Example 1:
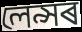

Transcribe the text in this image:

লেন্সৰ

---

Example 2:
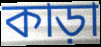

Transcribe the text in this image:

কাড়া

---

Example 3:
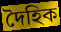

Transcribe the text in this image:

দৈহিক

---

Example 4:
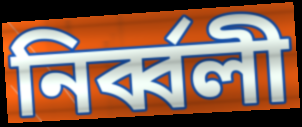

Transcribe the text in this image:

নিৰ্ব্বলী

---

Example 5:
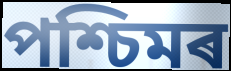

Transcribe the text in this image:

পশ্চিমৰ